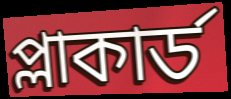
প্লাকার্ড